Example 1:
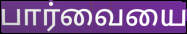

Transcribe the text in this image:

பார்வையை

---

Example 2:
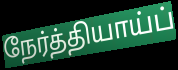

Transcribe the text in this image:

நேர்த்தியாய்ப்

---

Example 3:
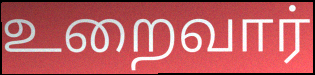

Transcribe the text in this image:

உறைவார்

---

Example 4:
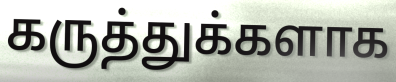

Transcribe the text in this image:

கருத்துக்களாக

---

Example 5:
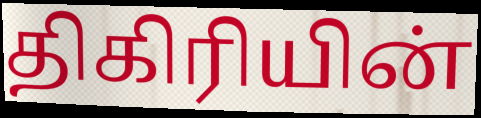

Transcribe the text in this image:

திகிரியின்